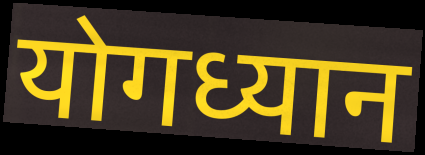
योगध्यान